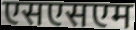
एसएसएम